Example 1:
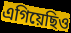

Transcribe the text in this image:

এগিয়েছিও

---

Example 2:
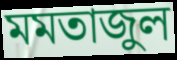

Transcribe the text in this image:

মমতাজুল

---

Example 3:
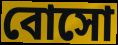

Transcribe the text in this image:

বোসো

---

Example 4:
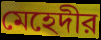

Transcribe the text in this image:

মেহেদীর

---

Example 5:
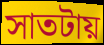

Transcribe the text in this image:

সাতটায়